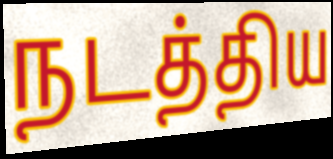
நடத்திய